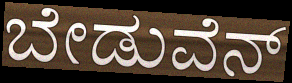
ಬೇಡುವೆನ್